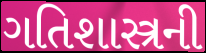
ગતિશાસ્ત્રની